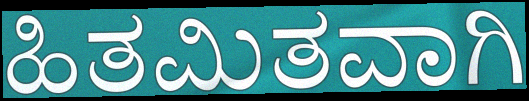
ಹಿತಮಿತವಾಗಿ